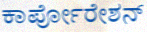
ಕಾರ್ಪೋರೇಶನ್